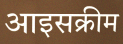
आइसक्रीम